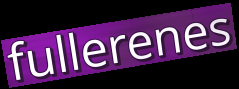
fullerenes